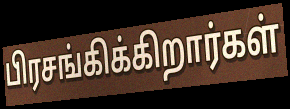
பிரசங்கிக்கிறார்கள்